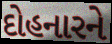
દોહનારને